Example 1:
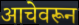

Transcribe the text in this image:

आचेवरून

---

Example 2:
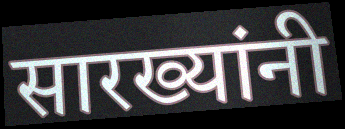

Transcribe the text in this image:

सारख्यांनी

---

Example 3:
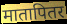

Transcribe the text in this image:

मातापितर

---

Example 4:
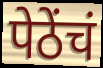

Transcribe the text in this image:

पेठेंचं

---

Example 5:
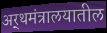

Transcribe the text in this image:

अर्थमंत्रालयातील